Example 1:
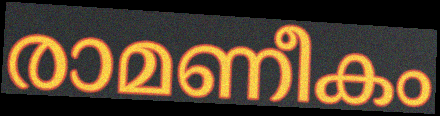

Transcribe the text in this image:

രാമണീകം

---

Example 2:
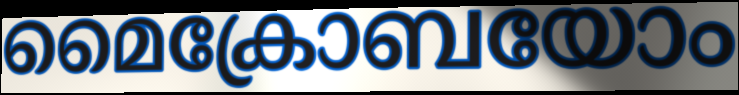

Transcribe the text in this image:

മൈക്രോബയോം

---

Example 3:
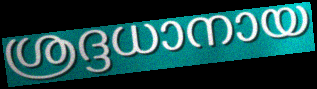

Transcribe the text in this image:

ശ്രദ്ദധാനായ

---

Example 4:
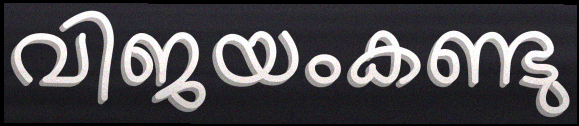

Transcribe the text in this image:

വിജയംകണ്ടു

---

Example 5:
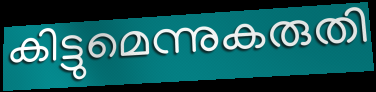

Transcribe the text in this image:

കിട്ടുമെന്നുകരുതി